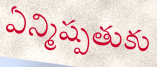
ఏన్మిష్పతుకు